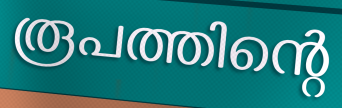
രൂപത്തിന്റെ